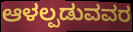
ಆಳಲ್ಪಡುವವರ